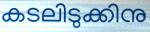
കടലിടുക്കിനു